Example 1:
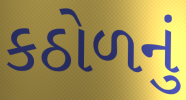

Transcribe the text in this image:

કઠોળનું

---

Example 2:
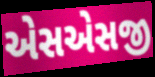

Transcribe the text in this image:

એસએસજી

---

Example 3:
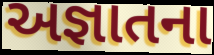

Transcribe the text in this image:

અજ્ઞાતના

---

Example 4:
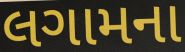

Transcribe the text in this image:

લગામના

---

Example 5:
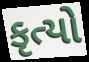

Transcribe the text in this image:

કૃત્યો